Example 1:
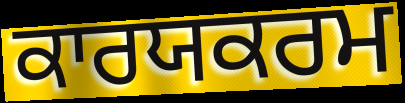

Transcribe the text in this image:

ਕਾਰਯਕਰਮ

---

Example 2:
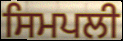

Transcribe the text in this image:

ਸਿਮਪਲੀ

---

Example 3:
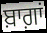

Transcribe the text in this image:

ਬ਼ਾਗ਼ਾਂ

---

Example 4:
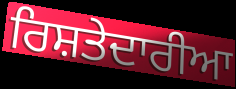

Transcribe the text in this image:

ਰਿਸ਼ਤੇਦਾਰੀਆ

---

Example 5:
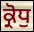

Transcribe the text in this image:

ਕ੍ਰੋਧੁ